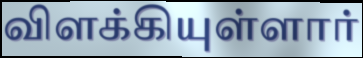
விளக்கியுள்ளார்